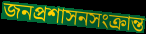
জনপ্রশাসনসংক্রান্ত